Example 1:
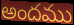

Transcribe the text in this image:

అందము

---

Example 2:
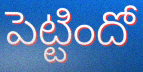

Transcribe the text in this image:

పెట్టిందో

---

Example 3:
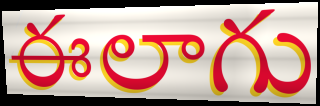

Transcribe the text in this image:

ఈలాగు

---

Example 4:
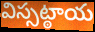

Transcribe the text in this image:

విస్సట్ఠాయ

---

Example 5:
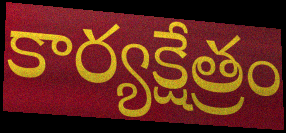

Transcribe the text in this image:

కార్యక్షేత్రం